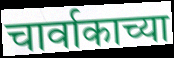
चार्वाकाच्या